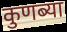
कुणब्या